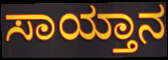
ಸಾಯ್ತಾನ